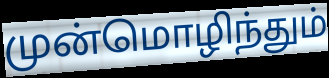
முன்மொழிந்தும்